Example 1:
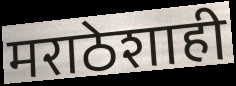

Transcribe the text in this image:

मराठेशाही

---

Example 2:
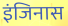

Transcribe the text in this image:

इंजिनास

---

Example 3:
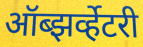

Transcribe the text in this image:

ऑब्झर्व्हेटरी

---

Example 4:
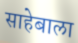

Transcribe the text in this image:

साहेबाला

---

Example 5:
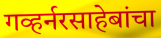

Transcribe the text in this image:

गव्हर्नरसाहेबांचा